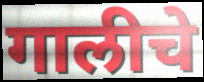
गालीचे